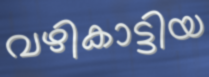
വഴികാട്ടിയ